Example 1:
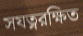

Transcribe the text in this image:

সযত্নরক্ষিত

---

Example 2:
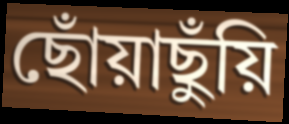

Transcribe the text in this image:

ছোঁয়াছুঁয়ি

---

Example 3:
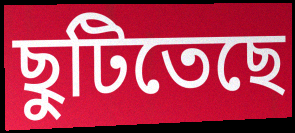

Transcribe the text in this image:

ছুটিতেছে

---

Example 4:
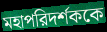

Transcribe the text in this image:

মহাপরিদর্শককে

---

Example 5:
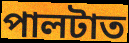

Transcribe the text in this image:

পালটাত